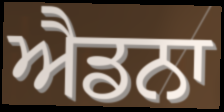
ਐਡਨਾ